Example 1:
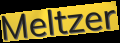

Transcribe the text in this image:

Meltzer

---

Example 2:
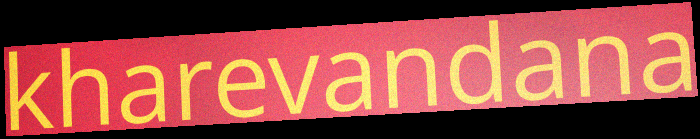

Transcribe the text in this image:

kharevandana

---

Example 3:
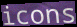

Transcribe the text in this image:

icons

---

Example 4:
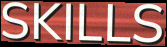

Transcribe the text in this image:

SKILLS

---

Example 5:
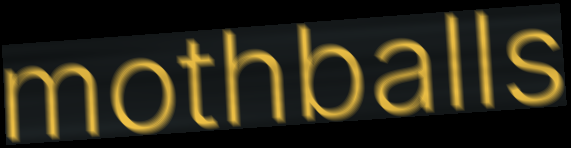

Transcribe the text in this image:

mothballs